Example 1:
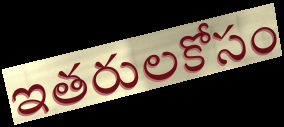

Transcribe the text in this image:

ఇతరులకోసం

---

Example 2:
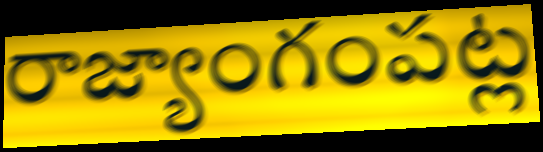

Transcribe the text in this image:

రాజ్యాంగంపట్ల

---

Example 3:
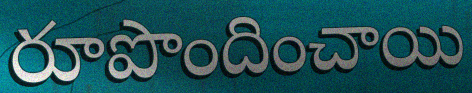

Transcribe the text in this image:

రూపొందించాయి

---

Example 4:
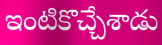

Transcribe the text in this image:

ఇంటికొచ్చేశాడు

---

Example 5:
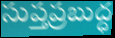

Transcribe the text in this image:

సుప్తప్రబుద్ధ